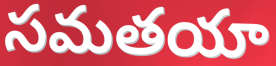
సమతయా